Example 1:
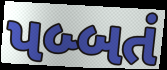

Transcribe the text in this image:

પબ્બતં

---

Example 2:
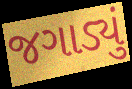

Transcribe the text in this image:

જગાડ્યું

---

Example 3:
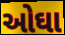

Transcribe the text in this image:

ઓઘા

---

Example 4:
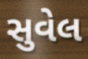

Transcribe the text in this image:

સુવેલ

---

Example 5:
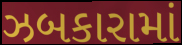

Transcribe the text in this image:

ઝબકારામાં